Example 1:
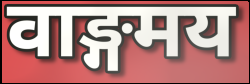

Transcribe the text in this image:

वाङ्गमय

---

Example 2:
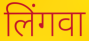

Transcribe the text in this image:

लिंगवा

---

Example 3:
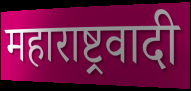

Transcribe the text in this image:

महाराष्ट्रवादी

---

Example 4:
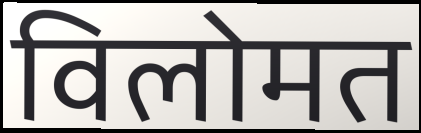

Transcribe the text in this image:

विलोमत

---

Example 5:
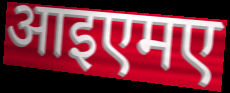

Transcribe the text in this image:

आइएमए